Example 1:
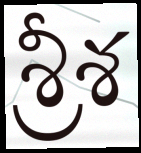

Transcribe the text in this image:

శ్రీశ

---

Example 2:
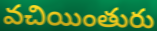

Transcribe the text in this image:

వచియింతురు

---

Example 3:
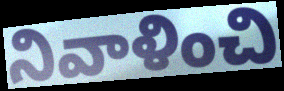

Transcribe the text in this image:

నివాళించి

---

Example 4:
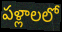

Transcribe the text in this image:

పళ్లాలలో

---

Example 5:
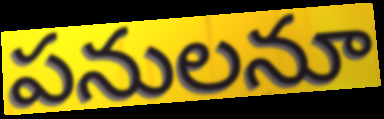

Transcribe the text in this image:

పనులనూ